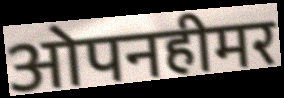
ओपनहीमर